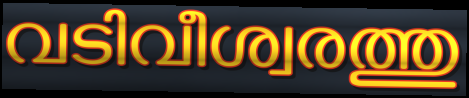
വടിവീശ്വരത്തു